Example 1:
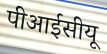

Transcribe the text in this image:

पीआईसीयू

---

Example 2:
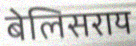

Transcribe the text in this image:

बेलिसराय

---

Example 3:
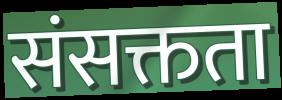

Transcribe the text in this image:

संसक्तता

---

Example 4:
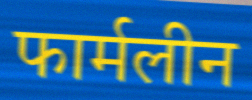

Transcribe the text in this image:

फार्मलीन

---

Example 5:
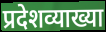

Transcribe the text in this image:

प्रदेशव्याख्या